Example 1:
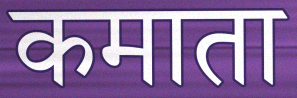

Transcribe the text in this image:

कमाता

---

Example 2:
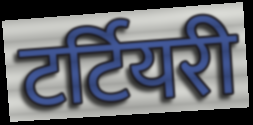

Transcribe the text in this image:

टर्टियरी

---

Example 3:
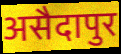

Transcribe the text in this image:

असैदापुर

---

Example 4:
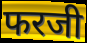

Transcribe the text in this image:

फरजी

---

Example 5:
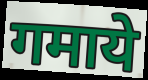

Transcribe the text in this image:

गमाये